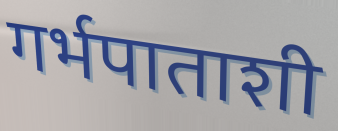
गर्भपाताशी